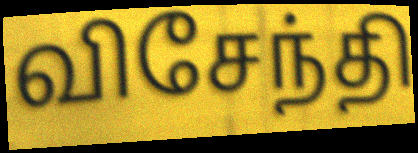
விசேந்தி